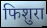
फिशुरा